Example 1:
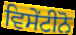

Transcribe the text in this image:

ਵਿਸੇਂਟੀਨੋ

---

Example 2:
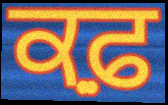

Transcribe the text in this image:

ਕ਼ਫ਼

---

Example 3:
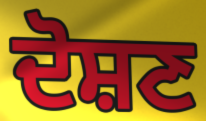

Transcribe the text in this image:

ਦੋਸ਼ਣ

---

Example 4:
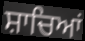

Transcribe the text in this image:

ਸ਼ਾਚਿਆਂ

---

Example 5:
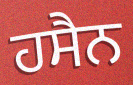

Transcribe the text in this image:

ਹਸੈਨ